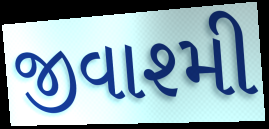
જીવાશ્મી